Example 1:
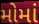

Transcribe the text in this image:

મોમાં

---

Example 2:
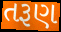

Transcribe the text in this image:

તરૂણ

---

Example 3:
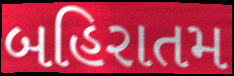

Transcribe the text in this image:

બહિરાતમ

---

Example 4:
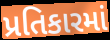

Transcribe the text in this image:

પ્રતિકારમાં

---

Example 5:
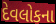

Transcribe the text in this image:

દેવલોકના